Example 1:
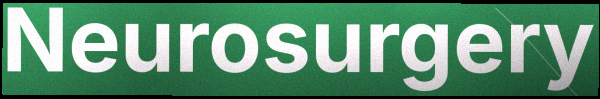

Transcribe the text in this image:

Neurosurgery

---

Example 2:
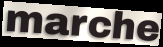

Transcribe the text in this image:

marche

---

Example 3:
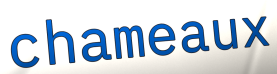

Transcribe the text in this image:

chameaux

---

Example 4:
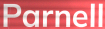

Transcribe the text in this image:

Parnell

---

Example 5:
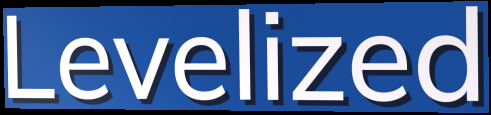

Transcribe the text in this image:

Levelized